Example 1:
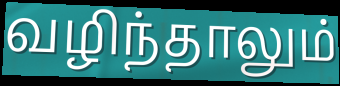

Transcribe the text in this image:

வழிந்தாலும்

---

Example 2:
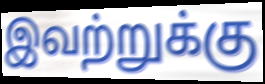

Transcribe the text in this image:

இவற்றுக்கு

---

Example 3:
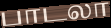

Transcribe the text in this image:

பாடலா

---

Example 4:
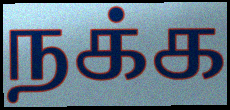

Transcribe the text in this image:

நக்க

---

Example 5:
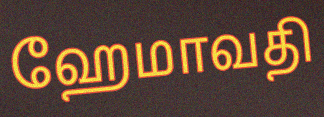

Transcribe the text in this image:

ஹேமாவதி